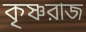
কৃষ্ণরাজ